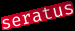
seratus